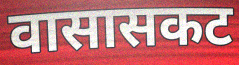
वासासकट